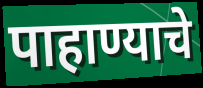
पाहाण्याचे